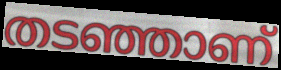
തടഞ്ഞാണ്